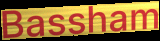
Bassham